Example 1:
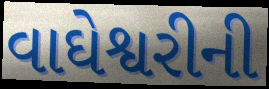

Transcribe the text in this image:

વાઘેશ્વરીની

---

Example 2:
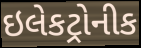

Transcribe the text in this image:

ઇલેકટ્રોનીક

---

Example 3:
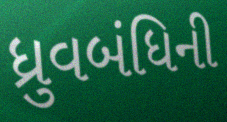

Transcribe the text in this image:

ધ્રુવબંધિની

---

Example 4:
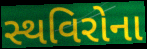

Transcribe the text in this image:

સ્થવિરોના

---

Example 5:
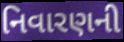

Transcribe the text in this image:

નિવારણની